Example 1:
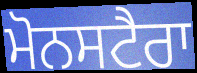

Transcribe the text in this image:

ਮੋਨਸਟੈਰਾ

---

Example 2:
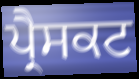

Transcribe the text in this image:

ਪ੍ਰੈਸਕਟ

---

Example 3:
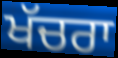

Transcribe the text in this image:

ਖੱਚਰਾ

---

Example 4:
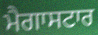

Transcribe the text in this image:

ਮੈਗਾਸਟਾਰ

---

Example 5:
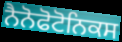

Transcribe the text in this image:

ਨੈਨੋਫੋਟੋਨਿਕਸ